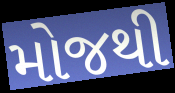
મોજથી